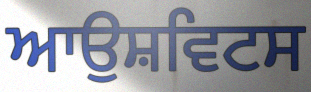
ਆਉਸ਼ਵਿਟਸ